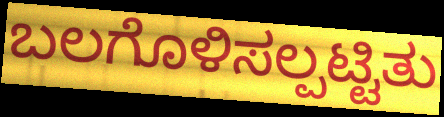
ಬಲಗೊಳಿಸಲ್ಪಟ್ಟಿತು